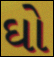
ઘો